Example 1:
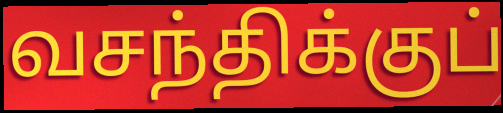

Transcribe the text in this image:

வசந்திக்குப்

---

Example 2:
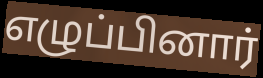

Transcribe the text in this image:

எழுப்பினார்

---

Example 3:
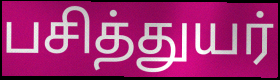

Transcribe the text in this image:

பசித்துயர்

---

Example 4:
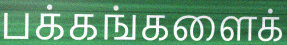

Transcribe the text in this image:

பக்கங்களைக்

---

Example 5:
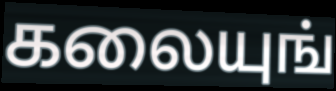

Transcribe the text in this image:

கலையுங்